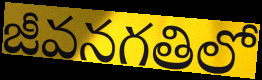
జీవనగతిలో